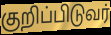
குறிப்பிடுவர்